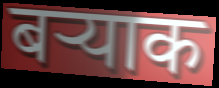
बऱ्याक